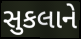
સુકલાને